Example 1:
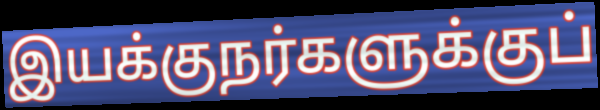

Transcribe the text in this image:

இயக்குநர்களுக்குப்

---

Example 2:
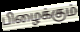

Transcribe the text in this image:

பிழைக்கும்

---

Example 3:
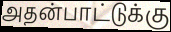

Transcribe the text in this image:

அதன்பாட்டுக்கு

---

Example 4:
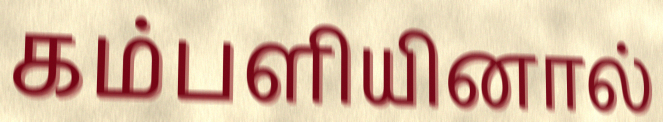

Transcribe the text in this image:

கம்பளியினால்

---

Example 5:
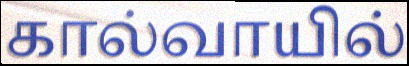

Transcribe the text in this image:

கால்வாயில்